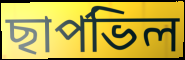
ছাৰ্পভিল